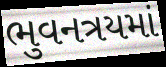
ભુવનત્રયમાં